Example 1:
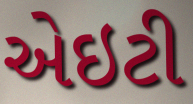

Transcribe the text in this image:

એઇટી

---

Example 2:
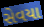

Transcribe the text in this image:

સેવયા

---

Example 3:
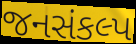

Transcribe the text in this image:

જનસંકલ્પ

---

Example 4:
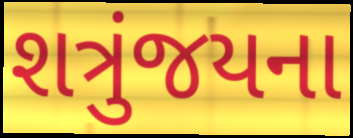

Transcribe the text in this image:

શત્રુંજયના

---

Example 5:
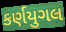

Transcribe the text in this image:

કર્ણયુગલ